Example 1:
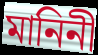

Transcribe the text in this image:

মানিনী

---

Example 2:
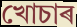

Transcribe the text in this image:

খোচাৰ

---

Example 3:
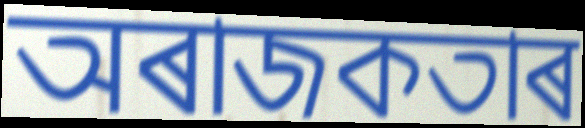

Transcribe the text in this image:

অৰাজকতাৰ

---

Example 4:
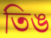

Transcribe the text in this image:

তিঙ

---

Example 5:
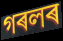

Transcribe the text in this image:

গৰলৰ